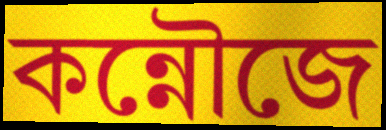
কন্নৌজে